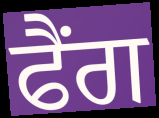
ਫੈਂਗ